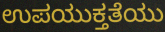
ಉಪಯುಕ್ತತೆಯು